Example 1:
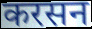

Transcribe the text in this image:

करसन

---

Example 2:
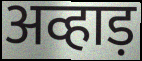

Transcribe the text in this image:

अव्हाड़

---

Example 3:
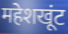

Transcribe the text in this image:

महेशखूंट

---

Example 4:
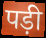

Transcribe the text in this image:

पड़ी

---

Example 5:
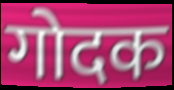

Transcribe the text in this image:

गोदक